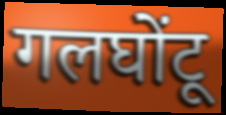
गलघोंटू